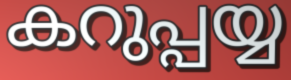
കറുപ്പയ്യ